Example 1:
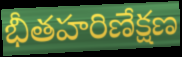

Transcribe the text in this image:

భీతహరిణేక్షణ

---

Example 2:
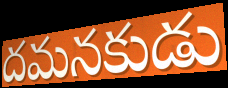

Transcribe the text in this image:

దమనకుడు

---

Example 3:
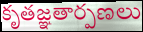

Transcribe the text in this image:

కృతజ్ఞతార్పణలు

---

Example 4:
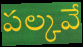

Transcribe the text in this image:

పల్కవే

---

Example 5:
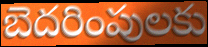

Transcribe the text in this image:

బెదరింపులకు